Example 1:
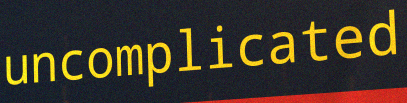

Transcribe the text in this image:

uncomplicated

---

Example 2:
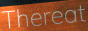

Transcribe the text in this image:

Thereat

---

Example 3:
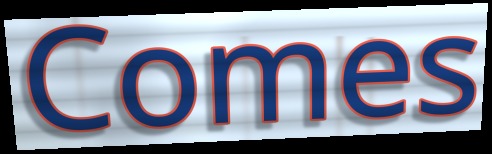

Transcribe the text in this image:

Comes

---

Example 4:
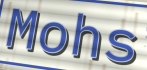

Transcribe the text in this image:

Mohs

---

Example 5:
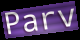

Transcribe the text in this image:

Parv